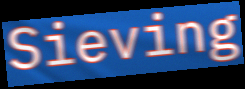
Sieving